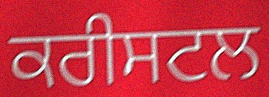
ਕਰੀਸਟਲ